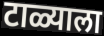
टाळ्याला